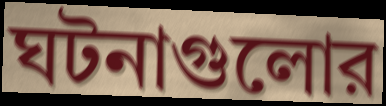
ঘটনাগুলোর